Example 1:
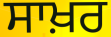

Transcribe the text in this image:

ਸਾਖ਼ਰ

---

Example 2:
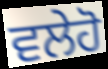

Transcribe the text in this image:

ਵਲੇਹੋ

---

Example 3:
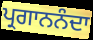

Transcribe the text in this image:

ਪ੍ਰਗਾਨਨੰਦਾ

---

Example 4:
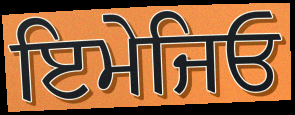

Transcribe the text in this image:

ਇਮੇਜਿਓ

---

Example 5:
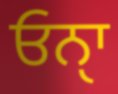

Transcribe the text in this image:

ਓਨਾੑ